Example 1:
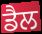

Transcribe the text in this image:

ਡੈਲ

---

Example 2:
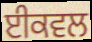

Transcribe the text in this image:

ਈਕਵਲ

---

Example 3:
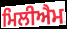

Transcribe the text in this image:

ਮਿਲੀਐਮ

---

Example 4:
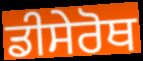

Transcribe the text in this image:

ਡੀਸੇਰੋਥ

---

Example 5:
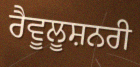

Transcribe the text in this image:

ਰੈਵੂਲੂਸ਼ਨਰੀ